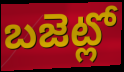
బజెట్లో